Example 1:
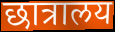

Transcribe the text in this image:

छात्रालय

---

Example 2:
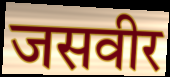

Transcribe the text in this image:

जसवीर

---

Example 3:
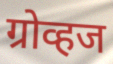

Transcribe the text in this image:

ग्रोव्हज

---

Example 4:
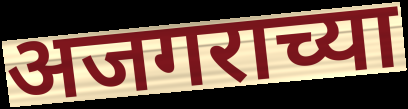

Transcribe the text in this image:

अजगराच्या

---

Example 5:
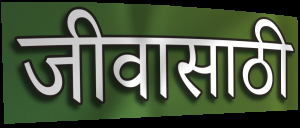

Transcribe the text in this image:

जीवासाठी